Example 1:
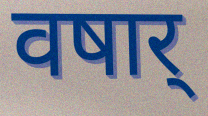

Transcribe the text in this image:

वषार्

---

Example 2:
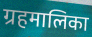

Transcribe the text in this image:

ग्रहमालिका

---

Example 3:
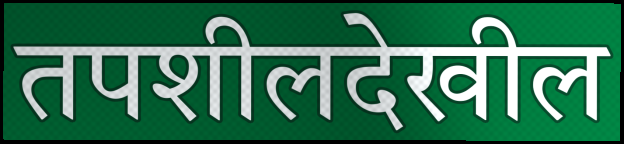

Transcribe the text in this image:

तपशीलदेखील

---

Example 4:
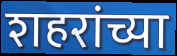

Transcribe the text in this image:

शहरांच्या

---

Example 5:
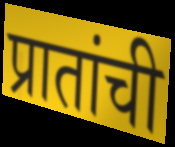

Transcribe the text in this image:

प्रातांची